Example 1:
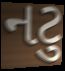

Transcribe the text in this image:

નટુ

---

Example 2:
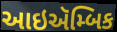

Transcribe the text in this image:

આઇઍમ્બિક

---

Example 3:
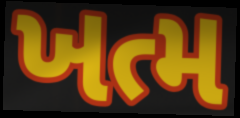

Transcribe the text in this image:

ખત્મ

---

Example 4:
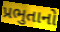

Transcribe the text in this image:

પ્રભુતાનો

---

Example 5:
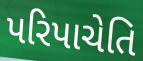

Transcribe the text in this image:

પરિપાચેતિ